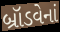
બ્રૉડવેનાં